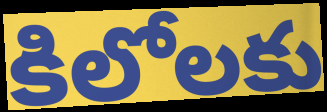
కిలోలకు